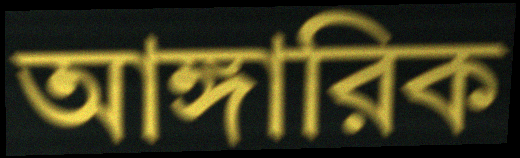
আঙ্গারিক